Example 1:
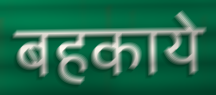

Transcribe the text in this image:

बहकाये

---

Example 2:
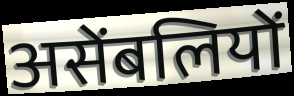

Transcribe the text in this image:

असेंबलियों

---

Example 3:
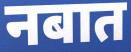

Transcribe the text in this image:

नबात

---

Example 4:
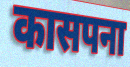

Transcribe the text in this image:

कासपना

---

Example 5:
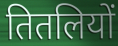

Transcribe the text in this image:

तितलियों